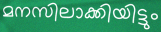
മനസിലാക്കിയിട്ടും